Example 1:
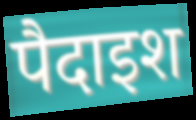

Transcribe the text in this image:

पैदाइश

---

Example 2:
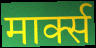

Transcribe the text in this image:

मार्क्स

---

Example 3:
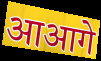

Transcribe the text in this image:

आआगे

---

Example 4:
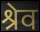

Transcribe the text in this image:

श्रेव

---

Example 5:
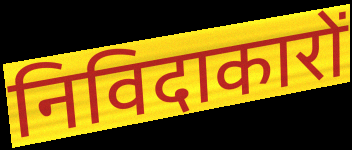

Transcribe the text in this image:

निविदाकारों